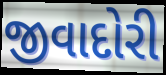
જીવાદોરી